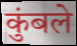
कुंबले